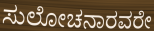
ಸುಲೋಚನಾರವರೇ